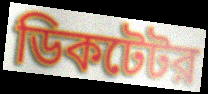
ডিকটেটর